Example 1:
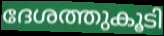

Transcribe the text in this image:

ദേശത്തുകൂടി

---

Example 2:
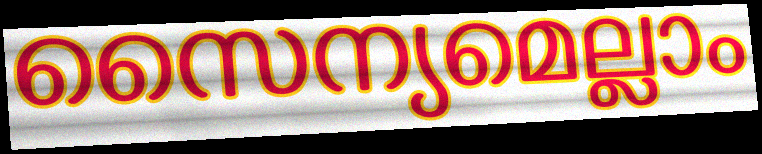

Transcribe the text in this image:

സൈന്യമെല്ലാം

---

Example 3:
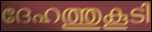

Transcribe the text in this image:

ദേഹത്തുകൂടി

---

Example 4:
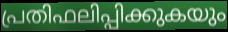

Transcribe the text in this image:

പ്രതിഫലിപ്പിക്കുകയും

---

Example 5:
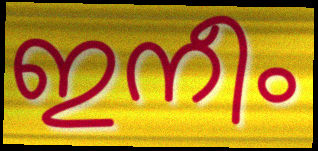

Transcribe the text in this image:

ഇനീം